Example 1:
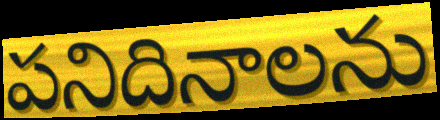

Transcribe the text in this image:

పనిదినాలను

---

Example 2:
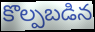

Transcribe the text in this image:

కొల్పబడిన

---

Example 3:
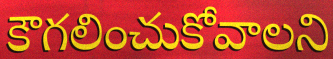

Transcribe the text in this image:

కౌగలించుకోవాలని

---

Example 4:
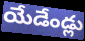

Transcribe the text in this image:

యేడేండ్లు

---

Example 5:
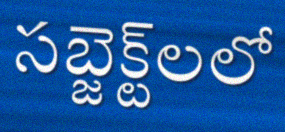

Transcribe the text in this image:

సబ్జెక్ట్‌లలో